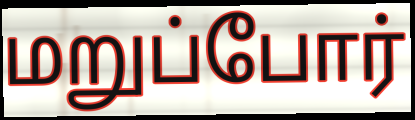
மறுப்போர்